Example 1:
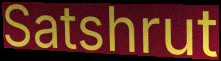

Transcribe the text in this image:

Satshrut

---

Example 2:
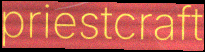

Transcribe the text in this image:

priestcraft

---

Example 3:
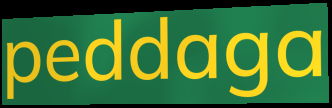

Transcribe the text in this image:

peddaga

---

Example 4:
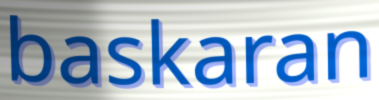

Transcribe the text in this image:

baskaran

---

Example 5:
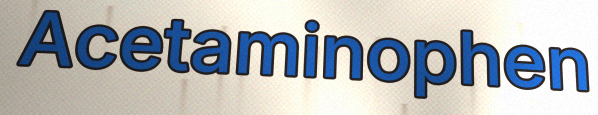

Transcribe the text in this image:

Acetaminophen